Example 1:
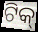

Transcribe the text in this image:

ଟିକ୍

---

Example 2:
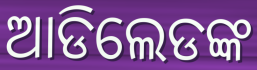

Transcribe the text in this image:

ଆଡିଲେଡଙ୍କ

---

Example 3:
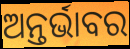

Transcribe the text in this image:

ଅନ୍ତର୍ଭାବର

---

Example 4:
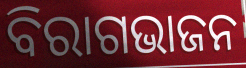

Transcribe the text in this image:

ବିରାଗଭାଜନ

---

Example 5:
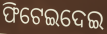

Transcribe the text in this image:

ଫିଟେଇଦେଇ